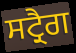
ਸਟ੍ਰੈਗ